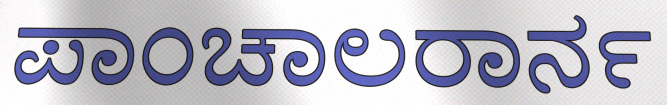
ಪಾಂಚಾಲರಾರ್ನ